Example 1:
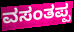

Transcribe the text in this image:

ವಸಂತಪ್ಪ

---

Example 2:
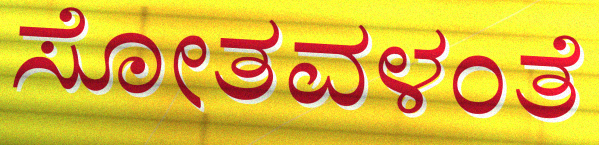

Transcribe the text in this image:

ಸೋತವಳಂತೆ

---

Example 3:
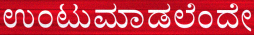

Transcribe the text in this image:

ಉಂಟುಮಾಡಲೆಂದೇ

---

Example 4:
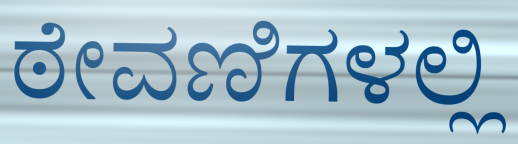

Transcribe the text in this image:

ಠೇವಣಿಗಳಲ್ಲಿ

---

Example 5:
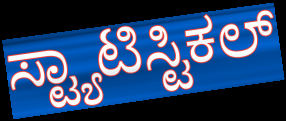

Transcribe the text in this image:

ಸ್ಟ್ಯಾಟಿಸ್ಟಿಕಲ್